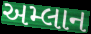
અમ્લાન